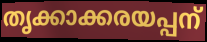
തൃക്കാക്കരയപ്പന്